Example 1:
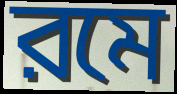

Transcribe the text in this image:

রমে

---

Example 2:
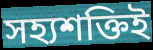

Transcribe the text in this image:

সহ্যশক্তিই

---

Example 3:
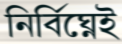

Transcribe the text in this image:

নির্বিঘ্নেই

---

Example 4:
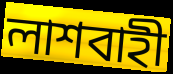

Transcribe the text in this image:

লাশবাহী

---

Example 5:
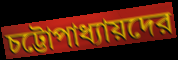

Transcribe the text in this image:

চট্টোপাধ্যায়দের